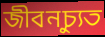
জীবনচ্যুত